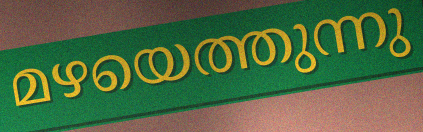
മഴയെത്തുന്നു